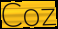
Coz